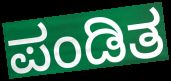
ಪಂಡಿತ